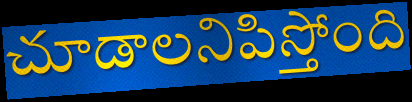
చూడాలనిపిస్తోంది